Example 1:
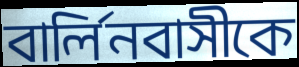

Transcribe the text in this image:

বার্লিনবাসীকে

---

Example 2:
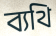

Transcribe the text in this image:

ব্যথি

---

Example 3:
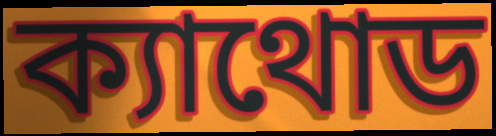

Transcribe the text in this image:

ক্যাথোড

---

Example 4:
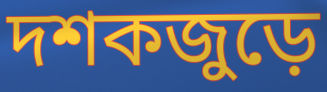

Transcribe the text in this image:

দশকজুড়ে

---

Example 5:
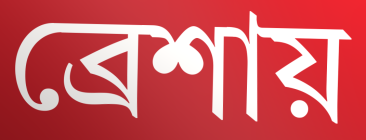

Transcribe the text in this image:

ব্রেশায়